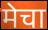
मेचा